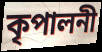
কৃপালনী